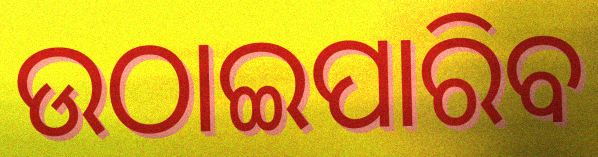
ଉଠାଇପାରିବ